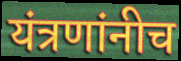
यंत्रणांनीच